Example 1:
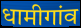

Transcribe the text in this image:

धामीगांव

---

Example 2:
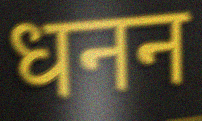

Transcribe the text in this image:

धनन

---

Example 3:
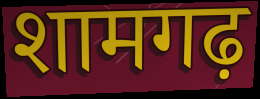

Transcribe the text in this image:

शामगढ़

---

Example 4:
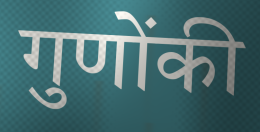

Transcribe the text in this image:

गुणोंकी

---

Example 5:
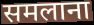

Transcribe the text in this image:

समलाना